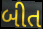
બીત